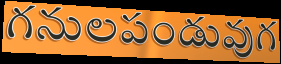
గనులపండువుగ